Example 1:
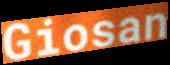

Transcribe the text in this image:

Giosan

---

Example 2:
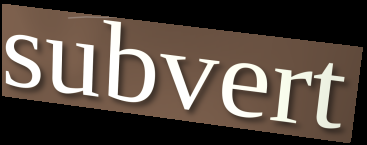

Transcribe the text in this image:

subvert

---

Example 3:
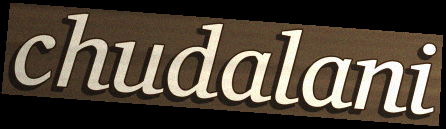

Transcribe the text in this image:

chudalani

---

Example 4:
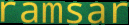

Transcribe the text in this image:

ramsar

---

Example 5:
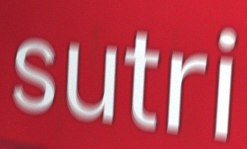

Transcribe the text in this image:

sutri